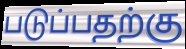
படுப்பதற்கு